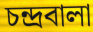
চন্দ্রবালা